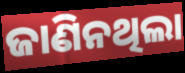
ଜାଣିନଥିଲା